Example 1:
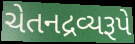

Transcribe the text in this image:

ચેતનદ્રવ્યરૂપે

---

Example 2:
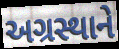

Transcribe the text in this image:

અગ્રસ્થાને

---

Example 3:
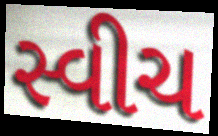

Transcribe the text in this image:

સ્વીચ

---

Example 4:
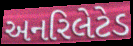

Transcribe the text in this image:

અનરિલેટેડ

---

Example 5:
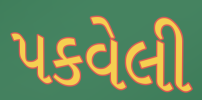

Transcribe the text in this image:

પકવેલી